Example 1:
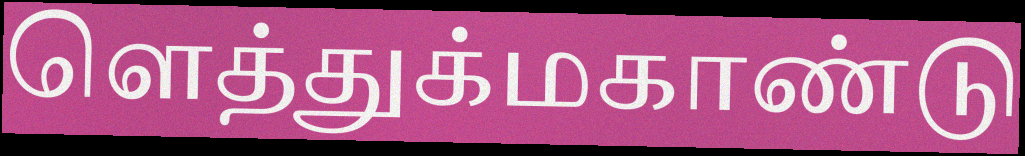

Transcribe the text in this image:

ளெத்துக்மகாண்டு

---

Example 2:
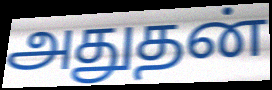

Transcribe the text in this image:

அதுதன்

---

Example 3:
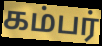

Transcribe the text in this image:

கம்பர்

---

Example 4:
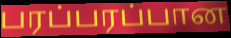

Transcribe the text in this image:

பரப்பரப்பான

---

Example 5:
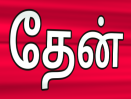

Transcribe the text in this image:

தேன்